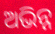
ଅଭିନ୍ନ